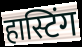
हास्टिंग